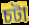
চটা